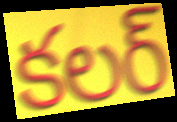
కలర్